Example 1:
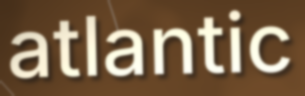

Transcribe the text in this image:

atlantic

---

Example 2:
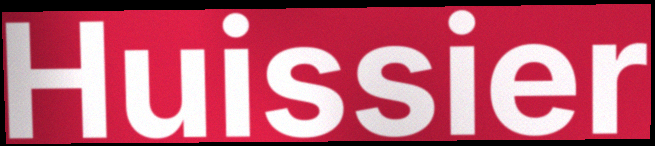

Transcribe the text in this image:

Huissier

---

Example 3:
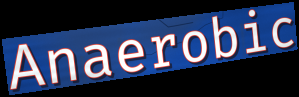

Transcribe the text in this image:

Anaerobic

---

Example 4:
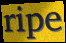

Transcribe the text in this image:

ripe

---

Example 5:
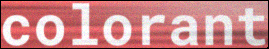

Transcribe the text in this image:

colorant